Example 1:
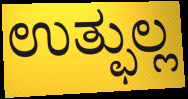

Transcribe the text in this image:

ಉತ್ಫುಲ್ಲ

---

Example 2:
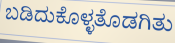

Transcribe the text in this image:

ಬಡಿದುಕೊಳ್ಳತೊಡಗಿತು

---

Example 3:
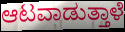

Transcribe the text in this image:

ಆಟವಾಡುತ್ತಾಳೆ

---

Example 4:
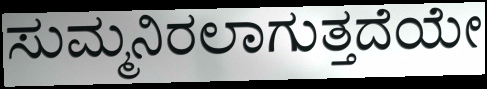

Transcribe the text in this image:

ಸುಮ್ಮನಿರಲಾಗುತ್ತದೆಯೇ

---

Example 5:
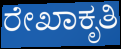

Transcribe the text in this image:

ರೇಖಾಕೃತಿ